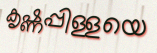
കൃഷ്ണപ്പിള്ളയെ